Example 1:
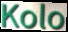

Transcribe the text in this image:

Kolo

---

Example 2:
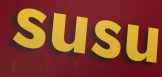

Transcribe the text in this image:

susu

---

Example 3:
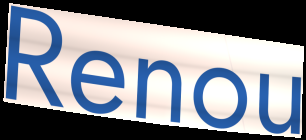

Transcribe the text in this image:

Renou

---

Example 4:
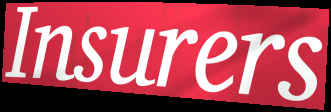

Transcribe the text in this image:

Insurers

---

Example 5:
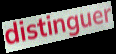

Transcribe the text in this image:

distinguer